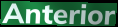
Anterior